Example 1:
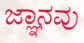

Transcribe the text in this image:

ಜ್ಞಾನವು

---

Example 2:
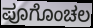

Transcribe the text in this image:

ಪೂಗೊಂಚಲ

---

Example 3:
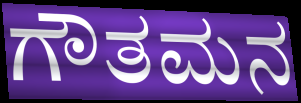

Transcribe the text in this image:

ಗೌತಮನ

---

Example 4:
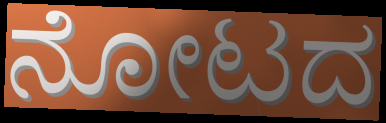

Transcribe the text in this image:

ನೋಟದ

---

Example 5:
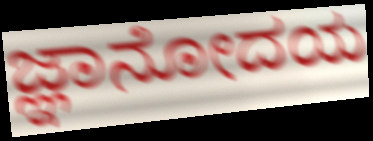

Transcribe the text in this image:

ಜ್ಞಾನೋದಯ